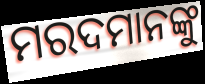
ମରଦମାନଙ୍କୁ